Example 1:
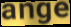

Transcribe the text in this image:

ange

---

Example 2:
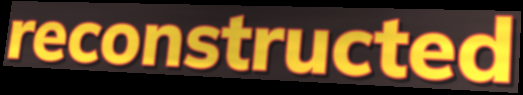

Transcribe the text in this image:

reconstructed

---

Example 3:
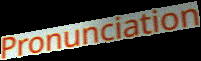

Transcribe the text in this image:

Pronunciation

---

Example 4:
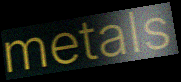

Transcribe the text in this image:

metals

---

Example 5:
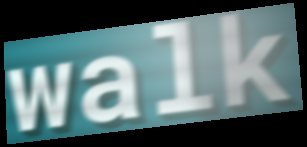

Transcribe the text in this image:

walk